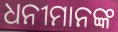
ଧନୀମାନଙ୍କ